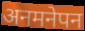
अनमनेपन